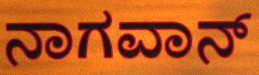
ನಾಗವಾನ್